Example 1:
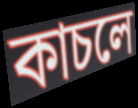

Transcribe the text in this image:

কাচলে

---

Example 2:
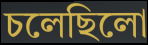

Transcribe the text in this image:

চলেছিলো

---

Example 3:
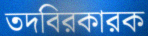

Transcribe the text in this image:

তদবিরকারক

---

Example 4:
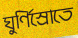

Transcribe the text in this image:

ঘুর্ণিস্রোতে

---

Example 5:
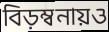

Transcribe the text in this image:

বিড়ম্বনায়ও